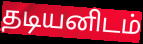
தடியனிடம்